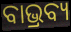
ବାଭ୍ରବ୍ୟ